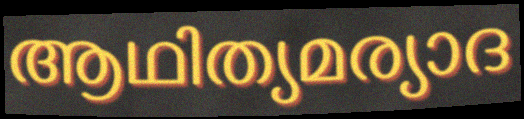
ആഥിത്യമര്യാദ